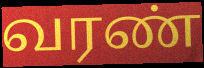
வரண்